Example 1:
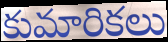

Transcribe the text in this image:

కుమారికలు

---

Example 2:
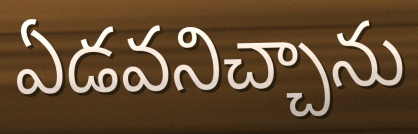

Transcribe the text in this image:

ఏడవనిచ్చాను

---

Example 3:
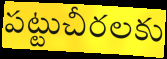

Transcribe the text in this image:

పట్టుచీరలకు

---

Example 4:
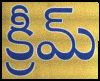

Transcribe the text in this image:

క్రీమ్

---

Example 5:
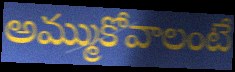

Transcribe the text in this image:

అమ్ముకోవాలంటే